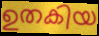
ഉതകിയ